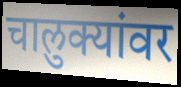
चालुक्यांवर